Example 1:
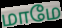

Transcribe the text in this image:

மாமே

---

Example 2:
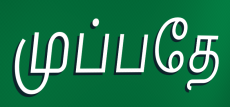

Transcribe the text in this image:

முப்பதே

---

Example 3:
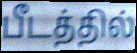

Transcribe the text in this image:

பீடத்தில்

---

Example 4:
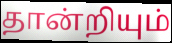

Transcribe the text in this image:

தான்றியும்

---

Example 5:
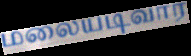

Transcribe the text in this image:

மலையடிவார